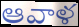
ఆవాళ